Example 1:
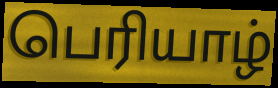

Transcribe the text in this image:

பெரியாழ்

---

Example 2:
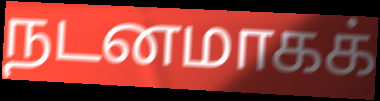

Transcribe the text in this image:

நடனமாகக்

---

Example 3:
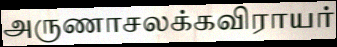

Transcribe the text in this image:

அருணாசலக்கவிராயர்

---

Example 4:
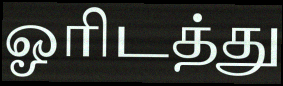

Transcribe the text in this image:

ஓரிடத்து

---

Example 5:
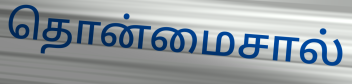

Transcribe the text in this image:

தொன்மைசால்